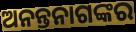
ଅନନ୍ତନାଗଙ୍କର